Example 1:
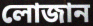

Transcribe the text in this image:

লোজান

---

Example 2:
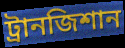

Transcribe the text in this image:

ট্রানজিশান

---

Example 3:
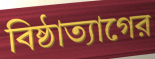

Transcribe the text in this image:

বিষ্ঠাত্যাগের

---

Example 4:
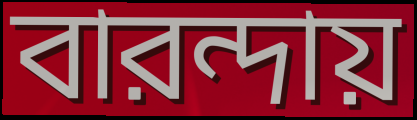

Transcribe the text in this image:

বারন্দায়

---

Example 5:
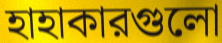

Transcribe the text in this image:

হাহাকারগুলো